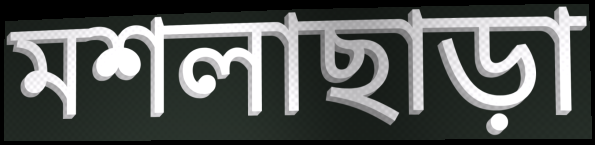
মশলাছাড়া